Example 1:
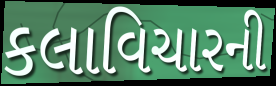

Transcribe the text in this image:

કલાવિચારની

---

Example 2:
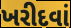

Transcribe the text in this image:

ખરીદવાં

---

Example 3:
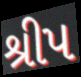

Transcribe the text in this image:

શ્રીપ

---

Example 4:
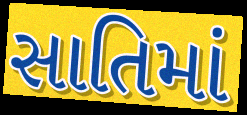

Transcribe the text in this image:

સાતિમાં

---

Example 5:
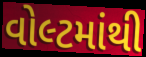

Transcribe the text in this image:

વોલ્ટમાંથી